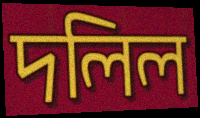
দলিল